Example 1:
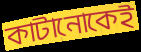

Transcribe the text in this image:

কাটানোকেই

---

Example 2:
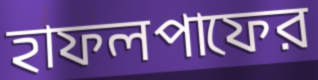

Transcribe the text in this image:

হাফলপাফের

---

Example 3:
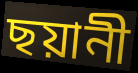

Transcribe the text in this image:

ছয়ানী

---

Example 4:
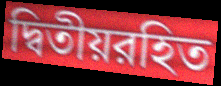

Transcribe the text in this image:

দ্বিতীয়রহিত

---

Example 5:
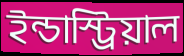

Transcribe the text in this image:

ইন্ডাস্ট্রিয়াল